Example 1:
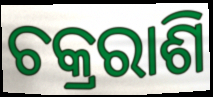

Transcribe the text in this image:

ଚକ୍ରରାଶି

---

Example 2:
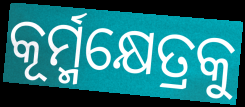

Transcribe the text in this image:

କୂର୍ମ୍ମକ୍ଷେତ୍ରକୁ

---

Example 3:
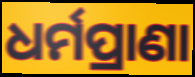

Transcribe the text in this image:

ଧର୍ମପ୍ରାଣା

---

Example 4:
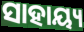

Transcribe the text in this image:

ସାହାୟ୍ୟ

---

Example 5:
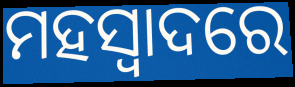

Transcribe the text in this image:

ମହସ୍ୱାଦରେ